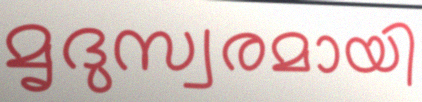
മൃദുസ്വരമായി